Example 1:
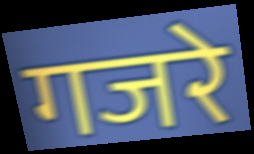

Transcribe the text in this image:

गजरे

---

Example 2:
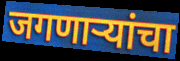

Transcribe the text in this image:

जगणाऱ्यांचा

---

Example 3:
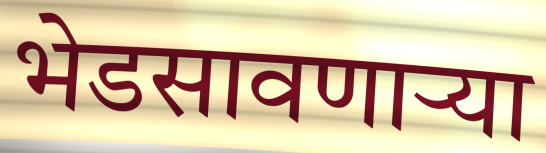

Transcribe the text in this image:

भेडसावणाऱ्या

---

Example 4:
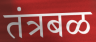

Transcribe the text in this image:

तंत्रबळ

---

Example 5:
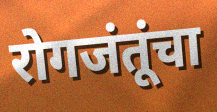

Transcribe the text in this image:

रोगजंतूंचा